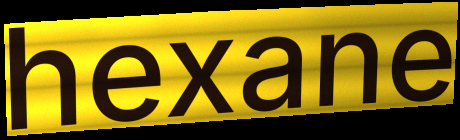
hexane